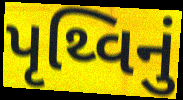
પૃથ્વિનું